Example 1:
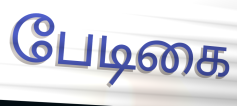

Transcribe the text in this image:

பேடிகை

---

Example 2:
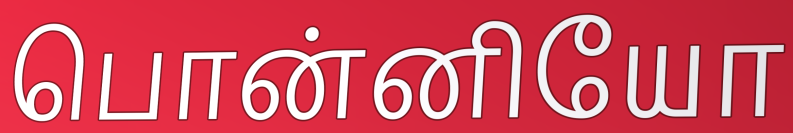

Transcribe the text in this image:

பொன்னியோ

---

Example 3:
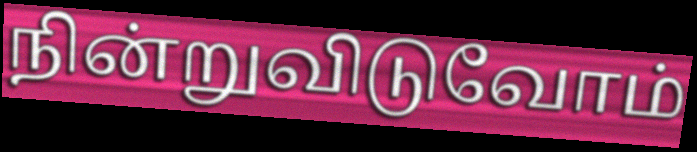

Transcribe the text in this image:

நின்றுவிடுவோம்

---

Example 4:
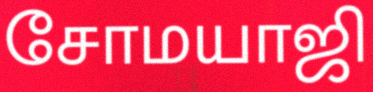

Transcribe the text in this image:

சோமயாஜி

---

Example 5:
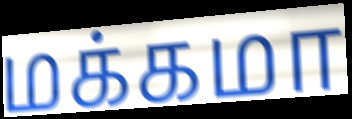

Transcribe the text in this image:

மக்கமா